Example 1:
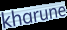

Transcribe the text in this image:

kharune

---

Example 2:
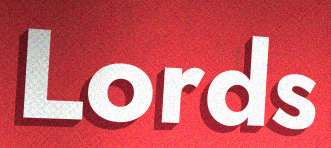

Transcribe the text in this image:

Lords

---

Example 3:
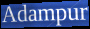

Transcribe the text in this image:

Adampur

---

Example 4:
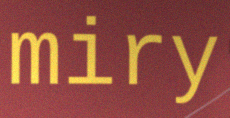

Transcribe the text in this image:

miry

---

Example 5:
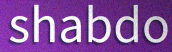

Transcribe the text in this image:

shabdo